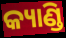
କ୍ୟାଣ୍ଡି